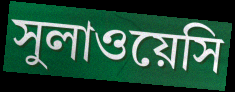
সুলাওয়েসি